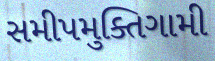
સમીપમુક્તિગામી